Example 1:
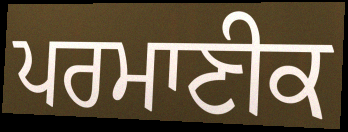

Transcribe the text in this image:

ਪਰਮਾਣੀਕ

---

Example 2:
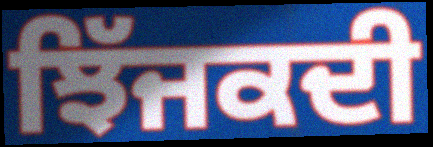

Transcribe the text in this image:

ਝਿੱਜਕਦੀ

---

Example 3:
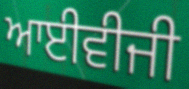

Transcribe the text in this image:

ਆਈਵੀਜੀ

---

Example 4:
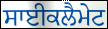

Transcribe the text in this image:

ਸਾਈਕਲੈਮੇਟ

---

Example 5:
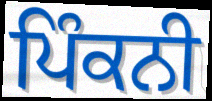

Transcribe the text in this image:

ਪਿੰਕਨੀ